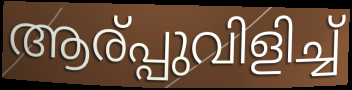
ആര്പ്പുവിളിച്ച്